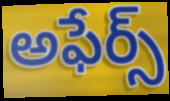
అఫేర్స్